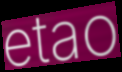
etao